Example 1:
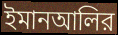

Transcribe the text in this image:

ইমানআলির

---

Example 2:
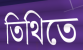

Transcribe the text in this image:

তিথিতে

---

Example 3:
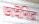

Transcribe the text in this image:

ডাইনির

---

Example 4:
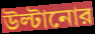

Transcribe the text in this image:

উল্টানোর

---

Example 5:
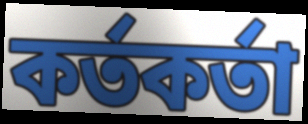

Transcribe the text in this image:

কর্তকর্তা